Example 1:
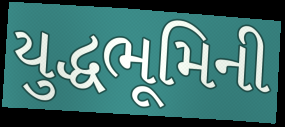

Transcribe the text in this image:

યુદ્ધભૂમિની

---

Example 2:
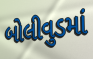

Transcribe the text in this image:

બોલીવુડમાં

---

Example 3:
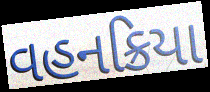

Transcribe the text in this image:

વહનક્રિયા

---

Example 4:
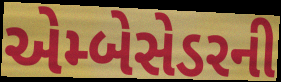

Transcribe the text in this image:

એમ્બેસેડરની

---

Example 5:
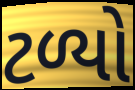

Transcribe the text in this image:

ટળ્યો